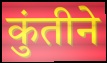
कुंतीने